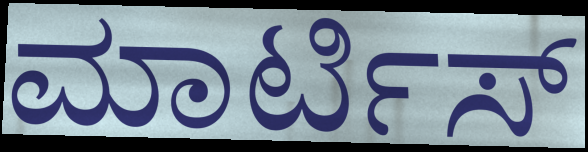
ಮಾರ್ಟಿಸ್